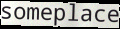
someplace